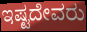
ಇಷ್ಟದೇವರು